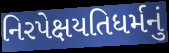
નિરપેક્ષયતિધર્મનું